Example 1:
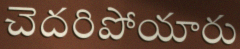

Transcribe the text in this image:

చెదరిపోయారు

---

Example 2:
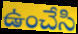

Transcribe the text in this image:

ఉంచేసి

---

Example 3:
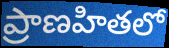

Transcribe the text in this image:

ప్రాణహితలో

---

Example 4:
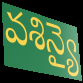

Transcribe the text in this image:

వశిన్యై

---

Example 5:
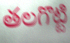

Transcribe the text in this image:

తలగొట్టి